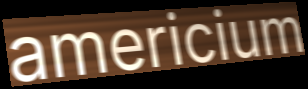
americium